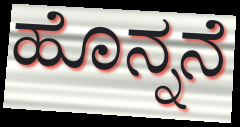
ಹೊನ್ನನೆ